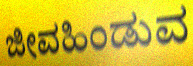
ಜೀವಹಿಂಡುವ